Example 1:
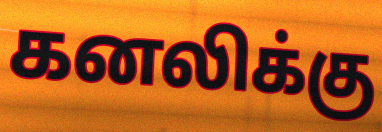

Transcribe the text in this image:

கனலிக்கு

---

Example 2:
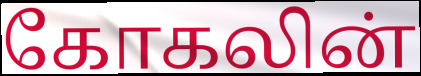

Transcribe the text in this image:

கோகலின்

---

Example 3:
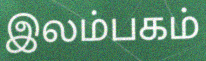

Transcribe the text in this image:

இலம்பகம்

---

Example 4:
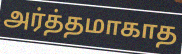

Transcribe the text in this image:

அர்த்தமாகாத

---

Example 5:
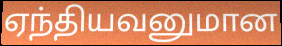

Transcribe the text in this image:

ஏந்தியவனுமான